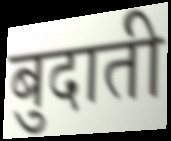
बुदाती